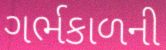
ગર્ભકાળની